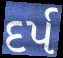
દર્પ